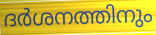
ദർശനത്തിനും